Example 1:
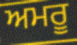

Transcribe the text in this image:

ਅਮਰੂ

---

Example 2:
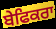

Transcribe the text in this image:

ਬੇਫਿਕਰਾ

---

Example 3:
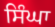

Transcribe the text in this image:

ਸਿੰਘਾ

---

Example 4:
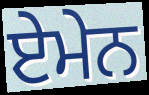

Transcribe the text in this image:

ਏਮੇਨ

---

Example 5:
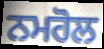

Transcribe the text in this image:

ਨਮਹੋਲ